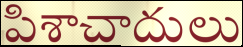
పిశాచాదులు